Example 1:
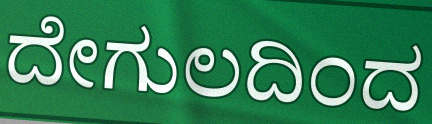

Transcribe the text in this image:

ದೇಗುಲದಿಂದ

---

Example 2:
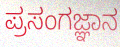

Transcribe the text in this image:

ಪ್ರಸಂಗಜ್ಞಾನ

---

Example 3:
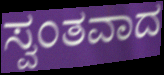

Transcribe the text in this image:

ಸ್ವಂತವಾದ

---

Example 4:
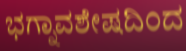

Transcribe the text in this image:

ಭಗ್ನಾವಶೇಷದಿಂದ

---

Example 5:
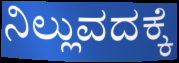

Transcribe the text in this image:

ನಿಲ್ಲುವದಕ್ಕೆ